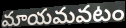
మాయమవటం